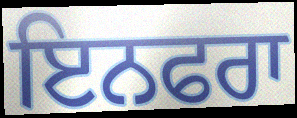
ਇਨਫਰਾ